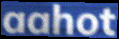
aahot